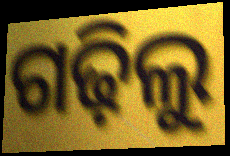
ଗଢ଼ିଲୁ